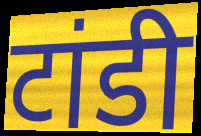
टांडी